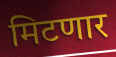
मिटणार